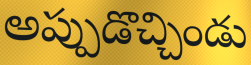
అప్పుడొచ్చిండు